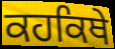
ਕਹਕਿਥੇ